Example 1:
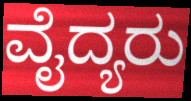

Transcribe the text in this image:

ವೈದ್ಯರು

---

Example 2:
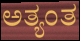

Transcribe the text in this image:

ಅತ್ಯಂತ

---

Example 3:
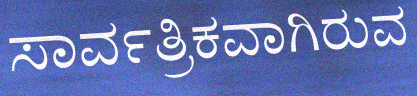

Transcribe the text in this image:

ಸಾರ್ವತ್ರಿಕವಾಗಿರುವ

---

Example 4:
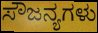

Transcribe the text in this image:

ಸೌಜನ್ಯಗಳು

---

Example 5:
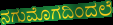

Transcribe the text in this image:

ನಗುಮೊಗದಿಂದಲೆ